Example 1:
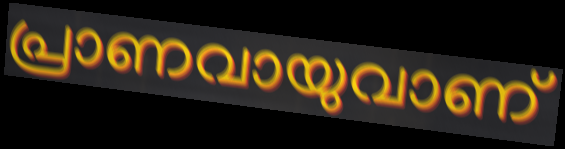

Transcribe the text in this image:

പ്രാണവായുവാണ്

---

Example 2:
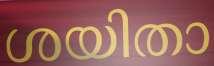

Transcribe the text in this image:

ശയിതാ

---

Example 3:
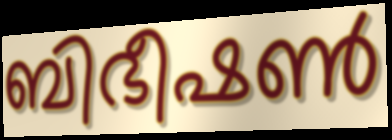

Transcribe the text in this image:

ബിഭീഷൺ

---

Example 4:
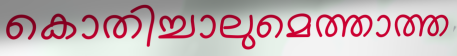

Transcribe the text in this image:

കൊതിച്ചാലുമെത്താത്ത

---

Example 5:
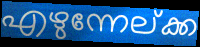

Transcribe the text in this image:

എഴുന്നേല്ക്ക